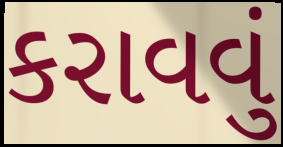
કરાવવું